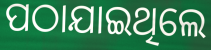
ପଠାଯାଇଥିଲେ